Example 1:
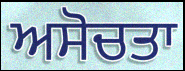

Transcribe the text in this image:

ਅਸੋਚਤਾ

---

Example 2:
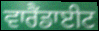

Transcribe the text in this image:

ਵਾਰੈਂਡਾਈਟ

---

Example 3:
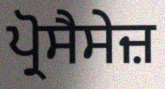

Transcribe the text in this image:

ਪ੍ਰੋਸੈਸੇਜ਼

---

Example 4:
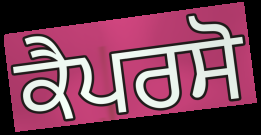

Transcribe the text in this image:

ਕੈਪਰਸੋ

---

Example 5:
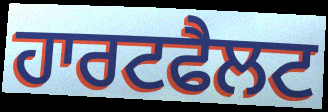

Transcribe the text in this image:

ਹਾਰਟਫੈਲਟ